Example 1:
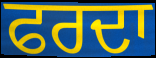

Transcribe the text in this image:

ਫਰਦਾ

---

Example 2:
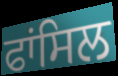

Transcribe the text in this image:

ਫਾਂਸਿਲ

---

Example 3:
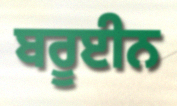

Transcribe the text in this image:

ਬਰੂਈਨ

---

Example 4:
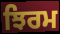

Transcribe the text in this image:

ਝਿਰਮ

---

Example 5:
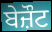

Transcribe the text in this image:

ਬੇਜ਼ੌਟ